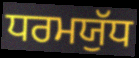
ਧਰਮਯੁੱਧ